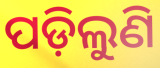
ପଡ଼ିଲୁଣି